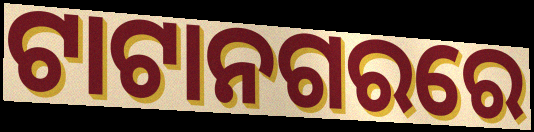
ଟାଟାନଗରରେ